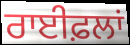
ਰਾਈਫ਼ਲਾਂ